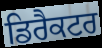
ਡਿਰੈਕਟਰ